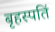
बृहस्पतिं